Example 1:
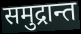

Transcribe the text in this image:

समुद्रान्त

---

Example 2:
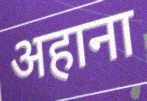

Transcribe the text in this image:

अहाना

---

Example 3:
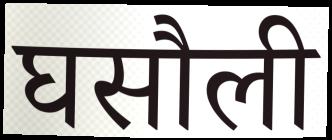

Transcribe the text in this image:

घसौली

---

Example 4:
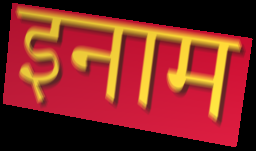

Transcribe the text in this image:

इनाम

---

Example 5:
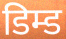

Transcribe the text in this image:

डिम्ड